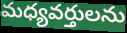
మధ్యవర్తులను